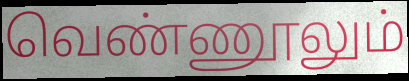
வெண்ணூலும்